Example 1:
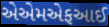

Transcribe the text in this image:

એએમએફઆઈ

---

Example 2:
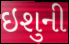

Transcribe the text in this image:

ઇશુની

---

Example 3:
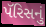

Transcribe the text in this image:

પૅરિસનું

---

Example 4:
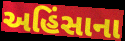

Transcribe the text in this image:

અહિંસાના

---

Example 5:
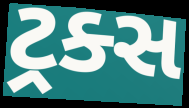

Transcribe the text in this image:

ટ્રક્સ